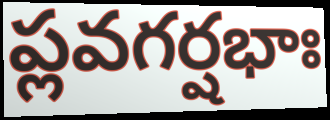
ప్లవగర్షభాః